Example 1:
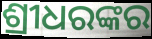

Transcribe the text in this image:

ଶ୍ରୀଧରଙ୍କର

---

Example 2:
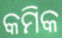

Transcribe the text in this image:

କମିକ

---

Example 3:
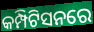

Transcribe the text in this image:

କମ୍ପିଟିସନରେ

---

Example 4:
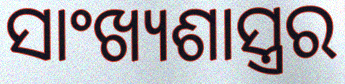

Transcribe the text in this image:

ସାଂଖ୍ୟଶାସ୍ତ୍ରର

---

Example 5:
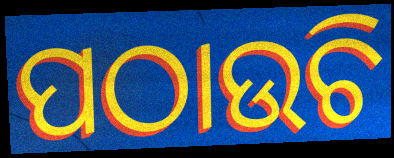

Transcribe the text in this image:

ପଠାଉଚି